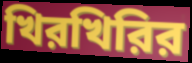
খিরখিরির